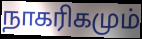
நாகரிகமும்